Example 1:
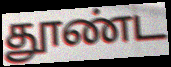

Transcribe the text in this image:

தூண்ட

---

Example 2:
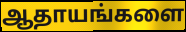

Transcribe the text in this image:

ஆதாயங்களை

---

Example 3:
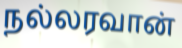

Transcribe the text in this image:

நல்லரவான்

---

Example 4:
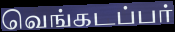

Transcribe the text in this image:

வெங்கடப்பர்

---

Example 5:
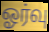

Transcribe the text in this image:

ஓர்வு